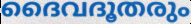
ദൈവദൂതരും